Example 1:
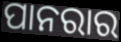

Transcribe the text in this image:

ପାନରାର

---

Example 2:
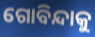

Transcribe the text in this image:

ଗୋବିନ୍ଦାକୁ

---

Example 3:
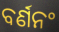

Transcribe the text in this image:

ବର୍ଣନଂ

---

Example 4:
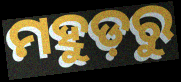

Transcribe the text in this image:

ମହୁଡ଼ରୁ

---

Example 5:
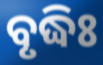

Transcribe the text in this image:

ବୃଦ୍ଧିଃ